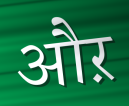
औऱ